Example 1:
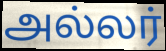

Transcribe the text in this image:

அல்லர்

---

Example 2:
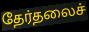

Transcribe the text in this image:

தேர்தலைச்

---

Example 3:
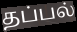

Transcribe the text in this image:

தப்பல்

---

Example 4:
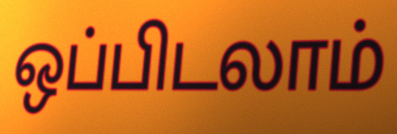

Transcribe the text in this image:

ஒப்பிடலாம்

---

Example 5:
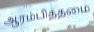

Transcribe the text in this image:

ஆரம்பித்தமை